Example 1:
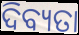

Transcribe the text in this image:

ଦିବ୍ୟତା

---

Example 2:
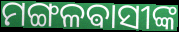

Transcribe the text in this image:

ମଙ୍ଗଳଵାସୀଙ୍କ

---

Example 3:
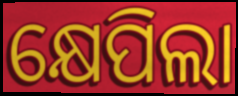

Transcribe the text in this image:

କ୍ଷେପିଲା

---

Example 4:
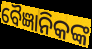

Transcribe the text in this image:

ବୈଜ୍ଞାନିକଙ୍କ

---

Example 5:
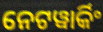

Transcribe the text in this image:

ନେଟୱାର୍କିଂ